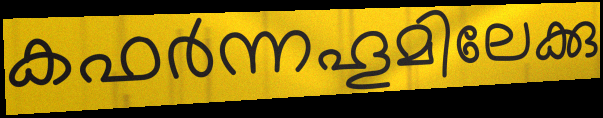
കഫർന്നഹൂമിലേക്കു